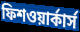
ফিশওয়ার্কার্স